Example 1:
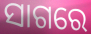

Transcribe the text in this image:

ସାଗରେ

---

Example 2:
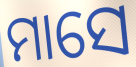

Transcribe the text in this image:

ମାସେ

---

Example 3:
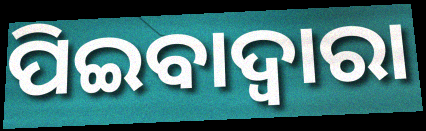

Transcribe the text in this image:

ପିଇବାଦ୍ଵାରା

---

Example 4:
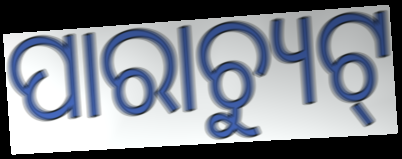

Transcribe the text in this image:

ପାରାଚ୍ୟୁଟ୍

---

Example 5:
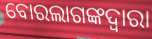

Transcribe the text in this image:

ବୋରଲାଗଙ୍କଦ୍ୱାରା